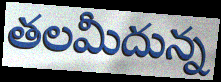
తలమీదున్న